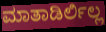
ಮಾತಾಡಿರ್ಲಿಲ್ಲ